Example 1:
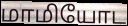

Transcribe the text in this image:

மாமியோட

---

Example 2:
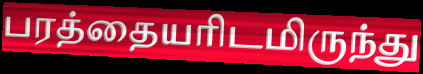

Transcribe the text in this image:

பரத்தையரிடமிருந்து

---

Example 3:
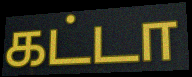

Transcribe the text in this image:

கட்டா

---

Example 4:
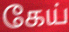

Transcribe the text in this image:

கேய்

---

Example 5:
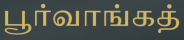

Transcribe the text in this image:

பூர்வாங்கத்